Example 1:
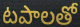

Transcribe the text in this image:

టపాలతో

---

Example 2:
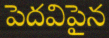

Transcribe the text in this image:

పెదవిపైన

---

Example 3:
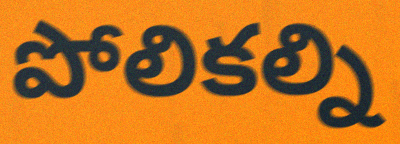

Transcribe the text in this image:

పోలికల్ని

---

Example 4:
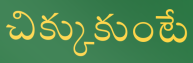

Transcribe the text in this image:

చిక్కుకుంటే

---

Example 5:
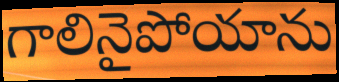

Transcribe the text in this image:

గాలినైపోయాను